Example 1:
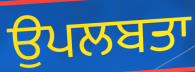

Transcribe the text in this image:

ਉਪਲਬਤਾ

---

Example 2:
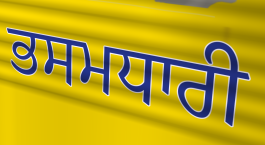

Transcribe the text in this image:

ਭਸਮਧਾਰੀ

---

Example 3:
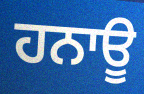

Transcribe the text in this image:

ਹਨਾਊ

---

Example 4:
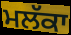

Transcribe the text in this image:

ਮਲੱਕਾ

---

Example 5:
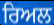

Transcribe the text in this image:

ਰਿਅਲ